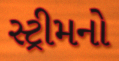
સ્ટ્રીમનો